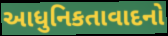
આધુનિકતાવાદનો